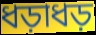
ধড়াধড়